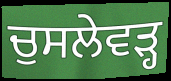
ਚੁਸਲੇਵੜ੍ਹ